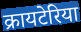
क्रायटेरिया